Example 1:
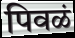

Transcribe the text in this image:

पिवळं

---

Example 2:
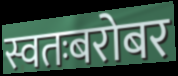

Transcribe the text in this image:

स्वतःबरोबर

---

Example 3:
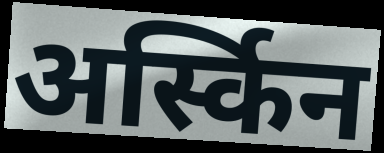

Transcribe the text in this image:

अर्स्किन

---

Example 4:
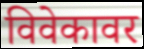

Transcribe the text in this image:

विवेकावर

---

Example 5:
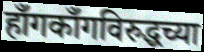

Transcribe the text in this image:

हाँगकाँगविरुद्धच्या